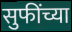
सुफींच्या